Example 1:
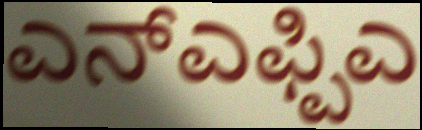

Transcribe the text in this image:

ಎನ್ಎಫ್ಪಿಎ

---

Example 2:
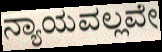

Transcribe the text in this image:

ನ್ಯಾಯವಲ್ಲವೇ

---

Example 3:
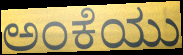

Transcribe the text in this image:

ಅಂಕೆಯು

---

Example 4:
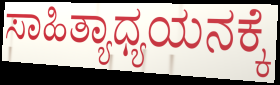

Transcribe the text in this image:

ಸಾಹಿತ್ಯಾಧ್ಯಯನಕ್ಕೆ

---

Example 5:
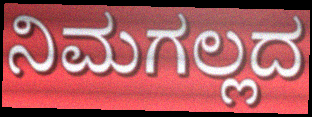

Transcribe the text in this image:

ನಿಮಗಲ್ಲದ